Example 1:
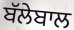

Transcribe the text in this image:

ਬੱਲੇਬਾਲ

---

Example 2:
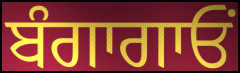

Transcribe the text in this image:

ਬੰਗਾਗਾਓਂ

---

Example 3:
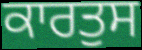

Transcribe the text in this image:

ਕਾਰਤੁਸ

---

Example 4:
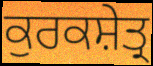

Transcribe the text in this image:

ਕੁਰਕਸ਼ੇਤ੍ਰ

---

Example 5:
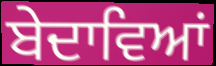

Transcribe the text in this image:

ਬੇਦਾਵਿਆਂ